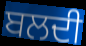
ਬਲਦੀ